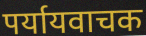
पर्यायवाचक